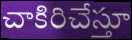
చాకిరిచేస్తూ